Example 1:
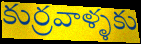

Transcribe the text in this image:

కుర్రవాళ్ళకు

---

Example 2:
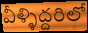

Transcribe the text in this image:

వీళ్ళిద్దరిలో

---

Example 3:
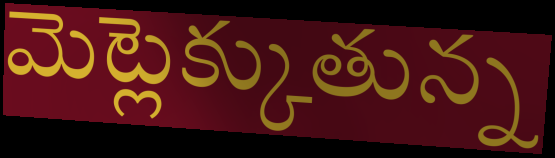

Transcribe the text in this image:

మెట్లెక్కుతున్న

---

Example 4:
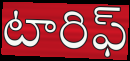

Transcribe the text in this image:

టారిఫ్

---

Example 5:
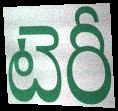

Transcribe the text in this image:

టెరీ